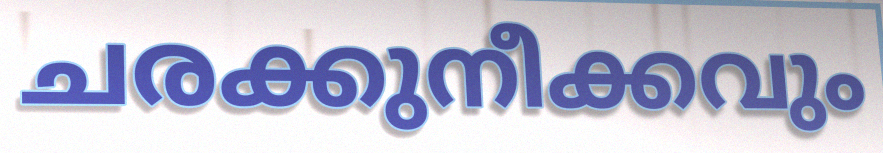
ചരക്കുനീക്കവും